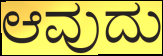
ಆವುದು